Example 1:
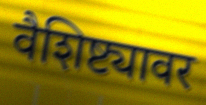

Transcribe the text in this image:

वैशिष्ट्यावर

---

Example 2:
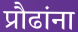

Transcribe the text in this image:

प्रौढांना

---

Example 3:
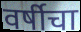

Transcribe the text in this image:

वर्षीचा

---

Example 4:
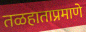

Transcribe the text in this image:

तळहाताप्रमाणे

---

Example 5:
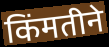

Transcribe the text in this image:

किंमतीने